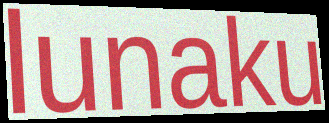
lunaku